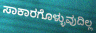
ಸಾಕಾರಗೊಳ್ಳುವುದಿಲ್ಲ